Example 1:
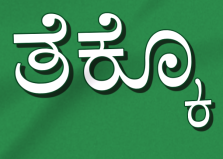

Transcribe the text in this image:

ತೆಕ್ಕೊ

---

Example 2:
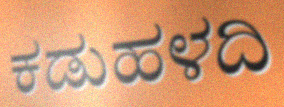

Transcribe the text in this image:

ಕಡುಹಳದಿ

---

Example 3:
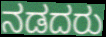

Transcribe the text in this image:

ನಡದರು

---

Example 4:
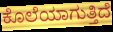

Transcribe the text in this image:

ಕೊಲೆಯಾಗುತ್ತಿದೆ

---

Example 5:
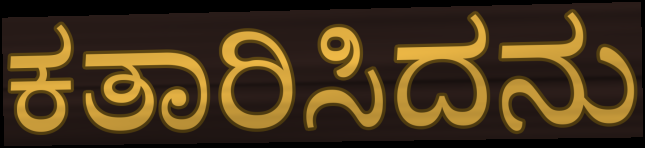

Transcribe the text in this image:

ಕತಾರಿಸಿದನು